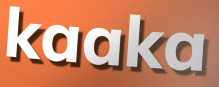
kaaka